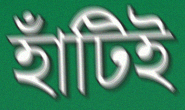
হাঁটিই